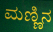
ಮಣ್ಣಿನ